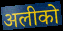
अलीको